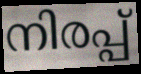
നിരപ്പ്